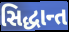
સિદ્ધાન્ત